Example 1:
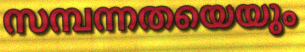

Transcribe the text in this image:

സമ്പന്നതയെയും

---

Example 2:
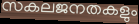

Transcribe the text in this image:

സകലജനതകളും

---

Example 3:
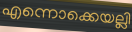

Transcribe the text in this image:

എന്നൊക്കെയല്ലി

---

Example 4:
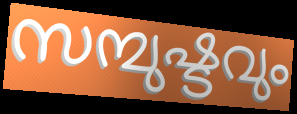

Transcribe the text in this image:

സമ്പുഷ്ടവും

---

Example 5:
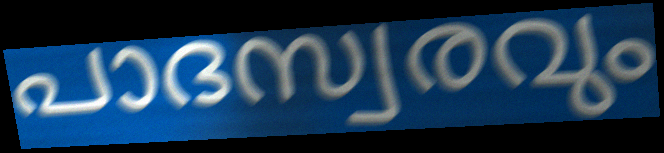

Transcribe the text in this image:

പാദസ്വരവും